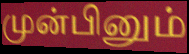
முன்பினும்